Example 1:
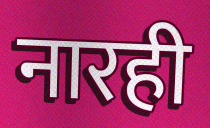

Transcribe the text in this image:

नारही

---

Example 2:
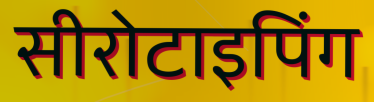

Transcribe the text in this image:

सीरोटाइपिंग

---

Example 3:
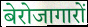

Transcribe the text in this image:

बेरोजागारों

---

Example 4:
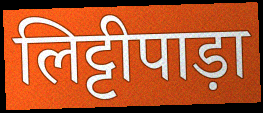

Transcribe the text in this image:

लिट्टीपाड़ा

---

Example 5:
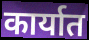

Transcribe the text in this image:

कार्यात